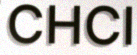
CHCl